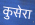
कुसेरा